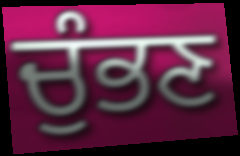
ਚੁੰਭਣ